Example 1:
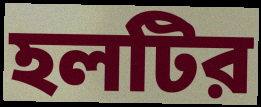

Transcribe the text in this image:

হলটির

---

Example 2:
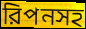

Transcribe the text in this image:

রিপনসহ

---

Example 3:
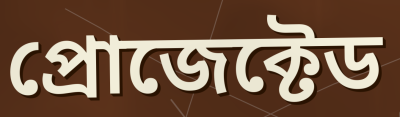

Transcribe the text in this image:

প্রোজেক্টেড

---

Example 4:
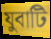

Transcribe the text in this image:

যুবাটি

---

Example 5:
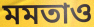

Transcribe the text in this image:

মমতাও